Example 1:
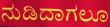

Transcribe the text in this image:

ನುಡಿದಾಗಲೂ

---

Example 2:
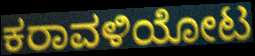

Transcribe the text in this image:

ಕರಾವಳಿಯೋಟ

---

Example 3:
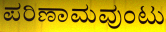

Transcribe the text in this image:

ಪರಿಣಾಮವುಂಟು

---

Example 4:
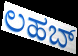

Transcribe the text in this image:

ಲಹಬ್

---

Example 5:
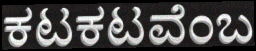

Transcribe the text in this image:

ಕಟಕಟವೆಂಬ